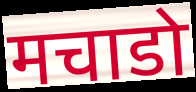
मचाडो